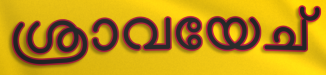
ശ്രാവയേച്